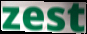
zest